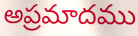
అప్రమాదము